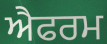
ਐਫਰਮ